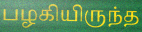
பழகியிருந்த